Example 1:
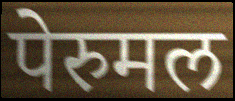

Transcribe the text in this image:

पेरुमल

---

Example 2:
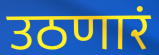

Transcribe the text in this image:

उठणारं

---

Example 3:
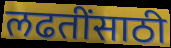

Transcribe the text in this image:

लढतींसाठी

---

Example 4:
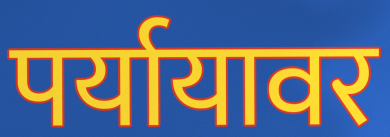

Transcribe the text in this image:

पर्यायावर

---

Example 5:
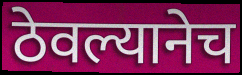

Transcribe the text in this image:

ठेवल्यानेच